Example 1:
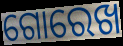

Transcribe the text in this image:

ଗୋରେଖ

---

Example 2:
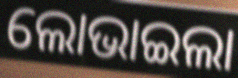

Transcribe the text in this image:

ଲୋଭାଇଲା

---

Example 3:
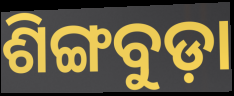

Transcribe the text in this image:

ଶିଙ୍ଗବୁଡ଼ା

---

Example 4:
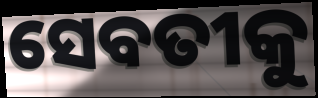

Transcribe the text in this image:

ସେବତୀକୁ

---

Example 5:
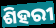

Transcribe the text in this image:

ଶିହରୀ